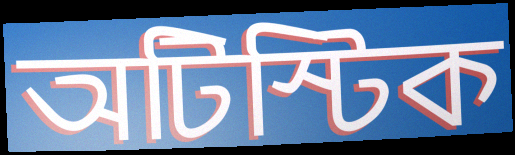
অটিস্টিক